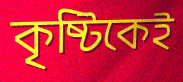
কৃষ্টিকেই